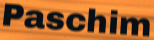
Paschim